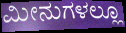
ಮೀನುಗಳಲ್ಲೂ